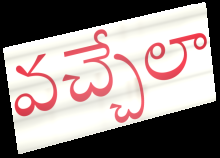
వచ్చేలా